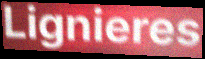
Lignieres